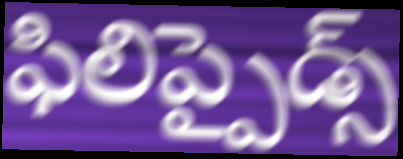
ఫిలిప్పైడ్స్